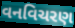
વનવિચરણ